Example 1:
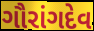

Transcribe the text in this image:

ગૌરાંગદેવ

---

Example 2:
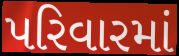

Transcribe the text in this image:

પરિવારમાં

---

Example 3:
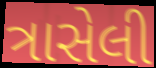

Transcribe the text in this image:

ત્રાસેલી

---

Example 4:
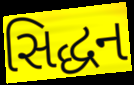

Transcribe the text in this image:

સિદ્ધન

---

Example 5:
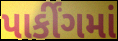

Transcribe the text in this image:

પાર્કીંગમાં